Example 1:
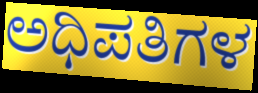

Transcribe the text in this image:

ಅಧಿಪತಿಗಳ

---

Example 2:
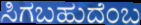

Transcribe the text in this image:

ಸಿಗಬಹುದೆಂಬ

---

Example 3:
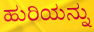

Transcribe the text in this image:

ಹುರಿಯನ್ನು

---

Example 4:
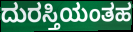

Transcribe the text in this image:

ದುರಸ್ತಿಯಂತಹ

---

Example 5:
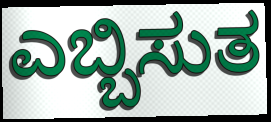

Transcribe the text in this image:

ಎಬ್ಬಿಸುತ